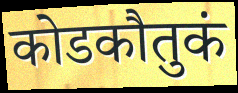
कोडकौतुकं